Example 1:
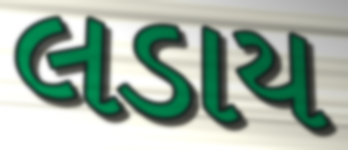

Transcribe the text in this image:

લડાય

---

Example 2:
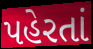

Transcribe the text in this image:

પહેરતાં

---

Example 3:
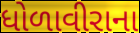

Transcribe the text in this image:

ધોળાવીરાના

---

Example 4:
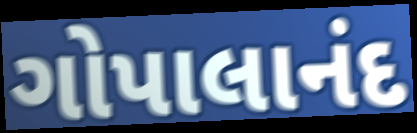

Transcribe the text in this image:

ગોપાલાનંદ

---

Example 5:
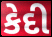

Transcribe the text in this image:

કેદી